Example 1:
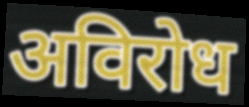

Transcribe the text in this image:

अविरोध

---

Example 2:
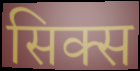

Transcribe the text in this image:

सिक्स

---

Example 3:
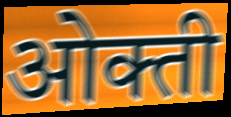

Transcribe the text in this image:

ओक्ती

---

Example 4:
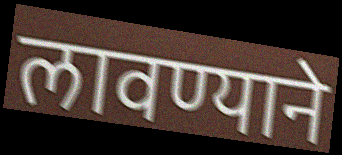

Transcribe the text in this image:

लावण्याने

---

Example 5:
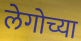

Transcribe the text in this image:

लेगोच्या